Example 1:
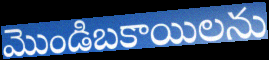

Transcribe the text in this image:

మొండిబకాయిలను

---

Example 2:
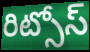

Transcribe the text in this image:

రిట్సోస్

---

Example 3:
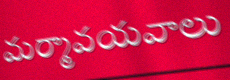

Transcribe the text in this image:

మర్మావయవాలు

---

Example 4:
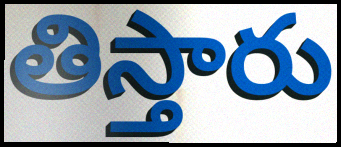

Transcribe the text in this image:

తిస్తారు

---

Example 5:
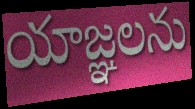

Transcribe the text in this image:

యాజ్ఞలను